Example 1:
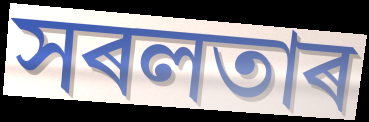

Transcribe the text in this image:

সৰলতাৰ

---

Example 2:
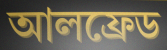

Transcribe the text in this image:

আলফ্ৰেড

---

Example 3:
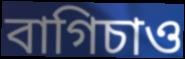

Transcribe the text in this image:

বাগিচাও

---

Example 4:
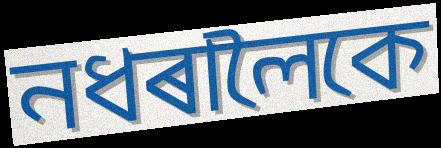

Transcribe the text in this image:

নধৰালৈকে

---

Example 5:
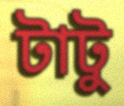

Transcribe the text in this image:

টাটু